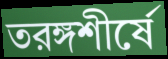
তরঙ্গশীর্ষে